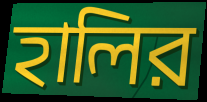
হালির